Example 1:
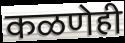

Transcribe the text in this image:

कळणेही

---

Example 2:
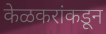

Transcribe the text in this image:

केळकरांकडून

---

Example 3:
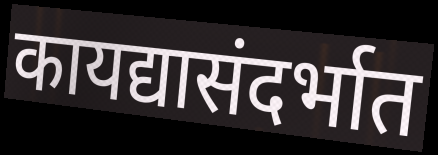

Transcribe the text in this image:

कायद्यासंदर्भात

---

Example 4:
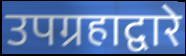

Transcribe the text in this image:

उपग्रहाद्वारे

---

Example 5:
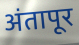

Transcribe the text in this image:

अंतापूर